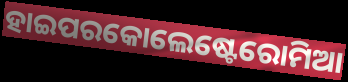
ହାଇପରକୋଲେଷ୍ଟେରୋମିଆ